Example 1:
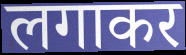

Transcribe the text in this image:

लगाकर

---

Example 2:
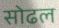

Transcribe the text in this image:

सोढल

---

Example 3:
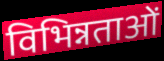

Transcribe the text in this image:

विभिन्नताओं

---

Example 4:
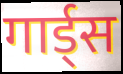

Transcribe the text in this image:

गार्ड्स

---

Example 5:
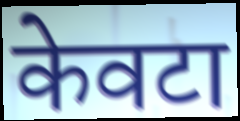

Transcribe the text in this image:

केवटा